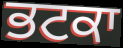
ਭਟਕਾ